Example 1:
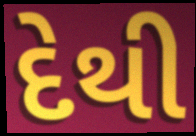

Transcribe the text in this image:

દેથી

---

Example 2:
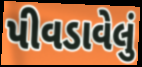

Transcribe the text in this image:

પીવડાવેલું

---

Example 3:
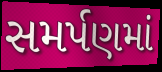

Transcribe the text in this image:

સમર્પણમાં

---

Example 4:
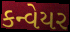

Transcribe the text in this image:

કન્વેયર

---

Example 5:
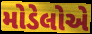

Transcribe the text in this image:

મોડેલોએ